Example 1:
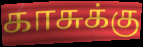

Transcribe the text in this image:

காசுக்கு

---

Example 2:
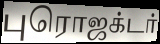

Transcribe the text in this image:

புரொஜக்டர்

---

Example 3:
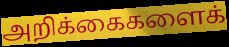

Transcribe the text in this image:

அறிக்கைகளைக்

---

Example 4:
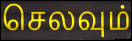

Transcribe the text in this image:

செலவும்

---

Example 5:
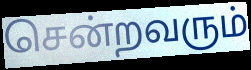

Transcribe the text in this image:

சென்றவரும்